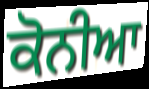
ਕੋਨੀਆ